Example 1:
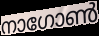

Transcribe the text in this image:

നാഗോൺ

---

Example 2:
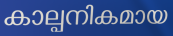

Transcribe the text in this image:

കാല്പനികമായ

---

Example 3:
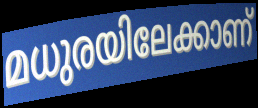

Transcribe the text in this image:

മധുരയിലേക്കാണ്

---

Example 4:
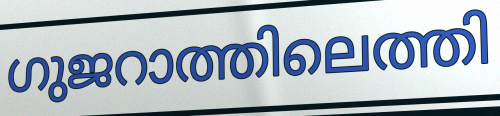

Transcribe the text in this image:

ഗുജറാത്തിലെത്തി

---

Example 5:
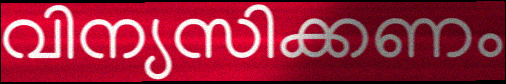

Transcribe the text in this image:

വിന്യസിക്കണം